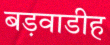
बड़वाडीह